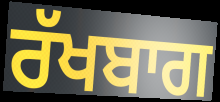
ਰੱਖਬਾਗ